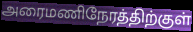
அரைமணிநேரத்திற்குள்